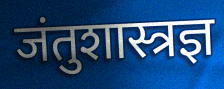
जंतुशास्त्रज्ञ